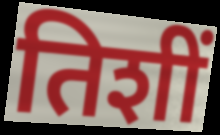
तिशीं